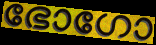
ഭോഗോ